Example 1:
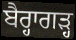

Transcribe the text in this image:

ਬੈਰ੍ਹਾਗੜ੍ਹ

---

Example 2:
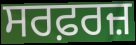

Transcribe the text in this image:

ਸਰਫ਼ਰਜ਼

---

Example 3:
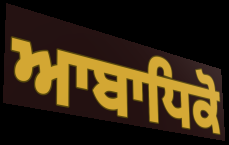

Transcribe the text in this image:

ਆਬਾਧਿਕੋ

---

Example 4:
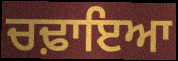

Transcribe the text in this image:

ਚਢ਼ਾਇਆ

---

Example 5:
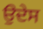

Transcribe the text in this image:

ਉਦੇਸ